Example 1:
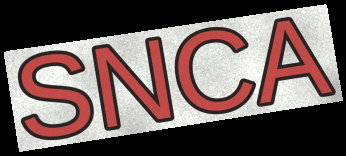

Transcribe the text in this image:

SNCA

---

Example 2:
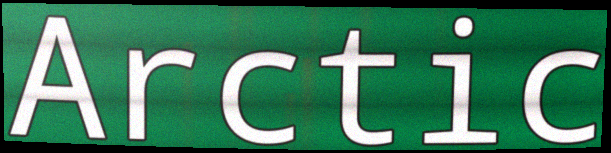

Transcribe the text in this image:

Arctic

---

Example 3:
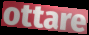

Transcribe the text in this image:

ottare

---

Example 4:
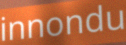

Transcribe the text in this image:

innondu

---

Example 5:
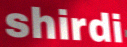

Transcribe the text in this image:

shirdi